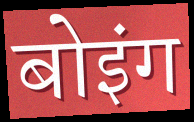
बोइंग